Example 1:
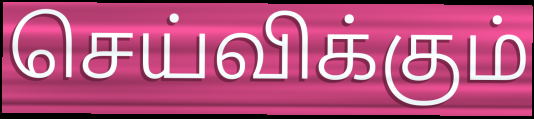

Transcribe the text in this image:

செய்விக்கும்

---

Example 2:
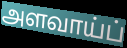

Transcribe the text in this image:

அளவாய்ப்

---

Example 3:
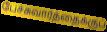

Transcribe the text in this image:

பேச்சுவார்த்தைக்குப்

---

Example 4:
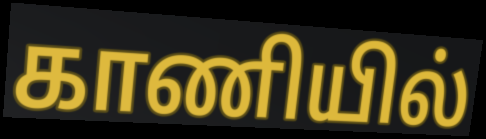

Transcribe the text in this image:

காணியில்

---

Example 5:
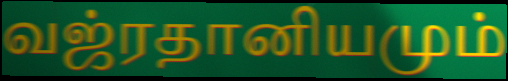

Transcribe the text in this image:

வஜ்ரதானியமும்